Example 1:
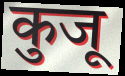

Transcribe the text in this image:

कुजू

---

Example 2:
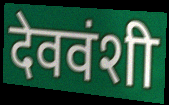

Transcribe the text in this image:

देववंशी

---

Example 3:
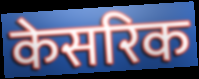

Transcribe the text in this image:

केसरिक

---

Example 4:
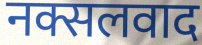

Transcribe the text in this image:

नक्सलवाद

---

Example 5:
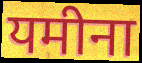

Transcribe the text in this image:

यमीना